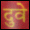
दुवे